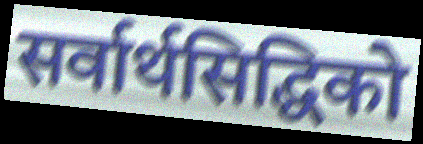
सर्वार्थसिद्धिको